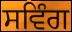
ਸਵਿੰਗ